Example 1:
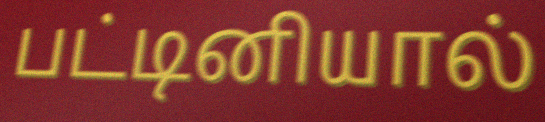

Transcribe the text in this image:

பட்டினியால்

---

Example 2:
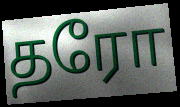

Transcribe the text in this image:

தரோ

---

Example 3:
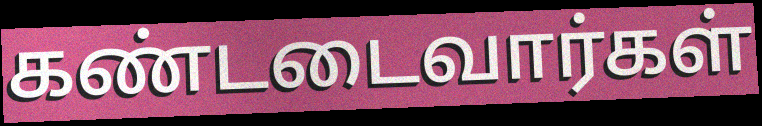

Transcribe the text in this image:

கண்டடைவார்கள்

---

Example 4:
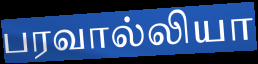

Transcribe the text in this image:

பரவால்லியா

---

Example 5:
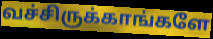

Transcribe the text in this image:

வச்சிருக்காங்களே